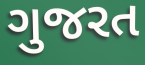
ગુજરત